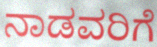
ನಾಡವರಿಗೆ